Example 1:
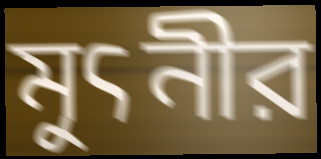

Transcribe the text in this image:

মুৎনীর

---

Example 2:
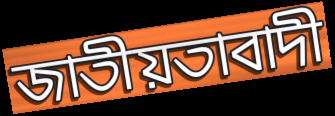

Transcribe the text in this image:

জাতীয়তাবাদী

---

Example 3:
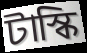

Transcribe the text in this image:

টাস্কি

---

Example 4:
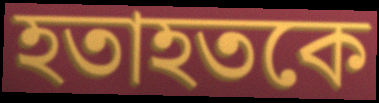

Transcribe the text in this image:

হতাহতকে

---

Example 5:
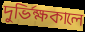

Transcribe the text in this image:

দুর্ভিক্ষকালে